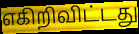
எகிறிவிட்டது